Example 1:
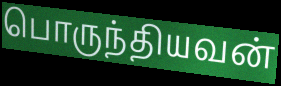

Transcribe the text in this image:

பொருந்தியவன்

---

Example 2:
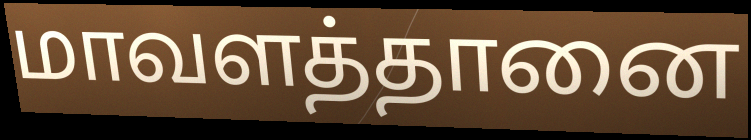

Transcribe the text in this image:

மாவளத்தானை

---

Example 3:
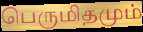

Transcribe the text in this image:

பெருமிதமும்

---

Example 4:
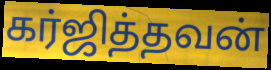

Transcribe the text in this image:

கர்ஜித்தவன்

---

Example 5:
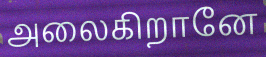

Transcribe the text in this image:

அலைகிறானே